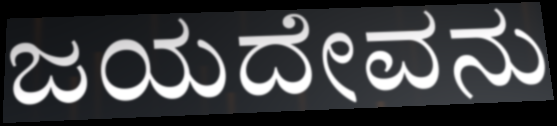
ಜಯದೇವನು